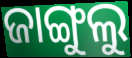
ଜାଙ୍ଗୁଲୁ